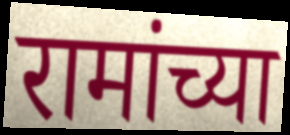
रामांच्या